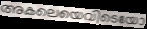
അകലെയെവിടെയോ